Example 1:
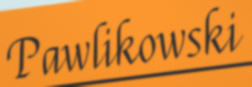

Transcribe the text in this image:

Pawlikowski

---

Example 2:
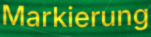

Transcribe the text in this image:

Markierung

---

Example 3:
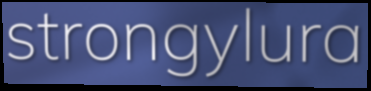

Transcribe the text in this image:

strongylura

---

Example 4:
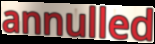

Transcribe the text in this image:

annulled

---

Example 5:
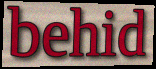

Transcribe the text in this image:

behid